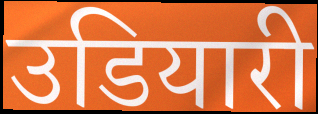
उडियारी